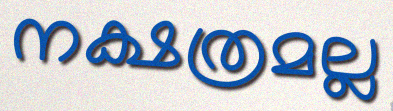
നക്ഷത്രമല്ല